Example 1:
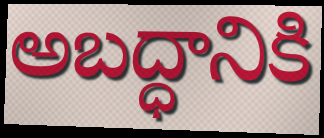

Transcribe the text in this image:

అబద్ధానికి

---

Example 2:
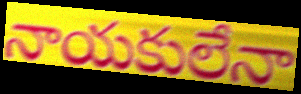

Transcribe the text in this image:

నాయకులేనా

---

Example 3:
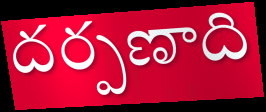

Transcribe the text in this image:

దర్పణాది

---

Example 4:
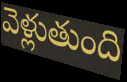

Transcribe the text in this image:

వెళ్లుతుంది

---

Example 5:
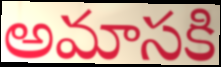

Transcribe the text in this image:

అమాసకి